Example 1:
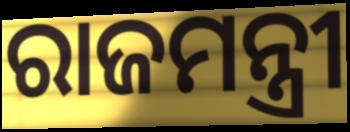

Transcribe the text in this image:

ରାଜମନ୍ତ୍ରୀ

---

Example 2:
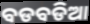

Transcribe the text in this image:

ବଡବଡିଆ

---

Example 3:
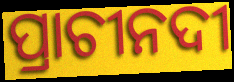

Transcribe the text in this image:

ପ୍ରାଚୀନଦୀ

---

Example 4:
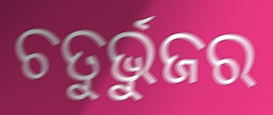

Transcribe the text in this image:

ଚତୁର୍ଭୁଜର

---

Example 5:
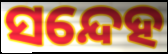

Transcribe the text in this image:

ସନ୍ଦେହ